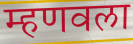
म्हणवला